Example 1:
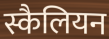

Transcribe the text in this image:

स्कैलियन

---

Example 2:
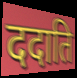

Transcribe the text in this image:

ददाति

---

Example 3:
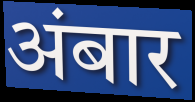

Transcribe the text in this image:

अंबार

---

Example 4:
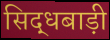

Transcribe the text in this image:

सिद्धबाड़ी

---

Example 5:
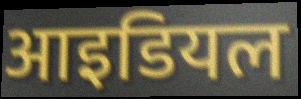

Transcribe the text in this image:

आइडियल